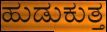
ಹುಡುಕುತ್ತ